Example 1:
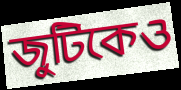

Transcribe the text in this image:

জুটিকেও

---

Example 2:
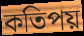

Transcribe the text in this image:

কতিপয়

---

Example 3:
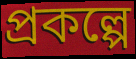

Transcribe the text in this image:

প্রকল্পে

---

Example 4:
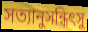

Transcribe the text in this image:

সত্যানুসন্ধিৎসু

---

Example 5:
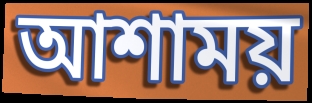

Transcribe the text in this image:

আশাময়